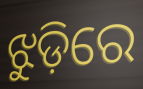
ଝୁଡ଼ିରେ